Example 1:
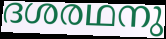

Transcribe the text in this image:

ദശരഥനു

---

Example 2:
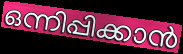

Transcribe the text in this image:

ഒന്നിപ്പിക്കാൻ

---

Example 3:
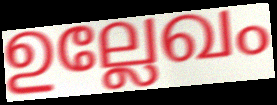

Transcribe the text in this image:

ഉല്ലേഖം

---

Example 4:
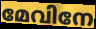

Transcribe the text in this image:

മേവിനേ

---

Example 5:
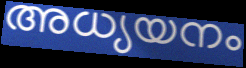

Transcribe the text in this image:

അധ്യയനം